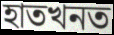
হাতখনত